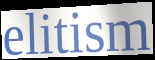
elitism